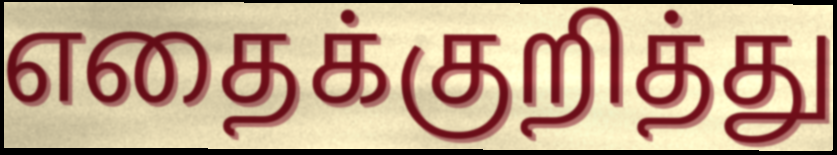
எதைக்குறித்து